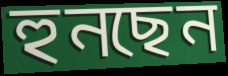
হুনছেন